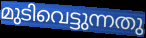
മുടിവെട്ടുന്നതു